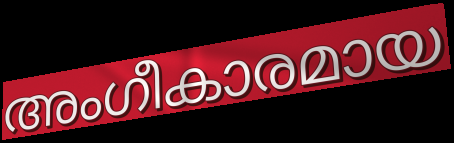
അംഗീകാരമായ